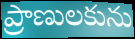
ప్రాణులకును